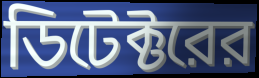
ডিটেক্টরের